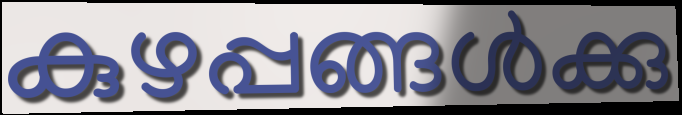
കുഴപ്പങ്ങൾക്കു